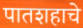
पातशहाचे